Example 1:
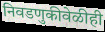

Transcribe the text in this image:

निवडणुकीवेळीही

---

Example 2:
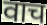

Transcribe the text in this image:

वाच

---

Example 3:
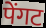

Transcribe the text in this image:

पेंगट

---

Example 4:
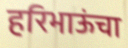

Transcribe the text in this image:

हरिभाऊंचा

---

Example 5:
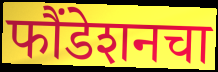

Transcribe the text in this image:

फौंडेशनचा